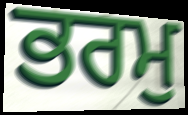
ਭਰਮੁ